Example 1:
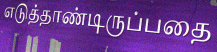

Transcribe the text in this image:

எடுத்தாண்டிருப்பதை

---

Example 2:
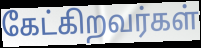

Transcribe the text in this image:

கேட்கிறவர்கள்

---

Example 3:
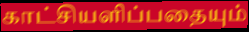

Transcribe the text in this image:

காட்சியளிப்பதையும்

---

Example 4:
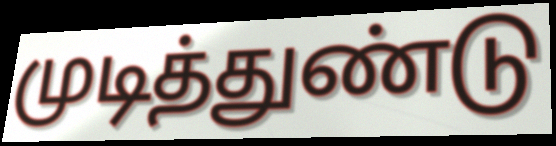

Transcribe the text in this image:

முடித்துண்டு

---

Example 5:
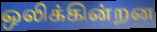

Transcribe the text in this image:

ஒலிக்கின்றன